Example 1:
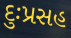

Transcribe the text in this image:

દુઃપ્રસહ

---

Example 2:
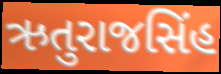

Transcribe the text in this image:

ઋતુરાજસિંહ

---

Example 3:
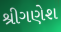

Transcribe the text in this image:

શ્રીગણેશ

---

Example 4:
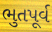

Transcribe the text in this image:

ભુતપૂર્વ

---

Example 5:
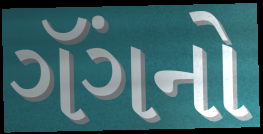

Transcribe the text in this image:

ગૅંગનો